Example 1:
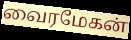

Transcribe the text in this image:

வைரமேகன்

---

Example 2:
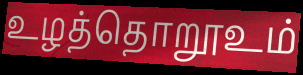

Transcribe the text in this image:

உழத்தொறூஉம்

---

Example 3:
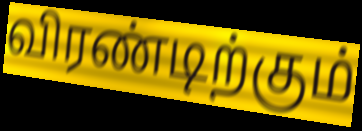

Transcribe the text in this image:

விரண்டிற்கும்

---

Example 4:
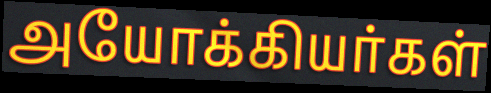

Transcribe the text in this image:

அயோக்கியர்கள்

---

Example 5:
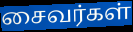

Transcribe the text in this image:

சைவர்கள்